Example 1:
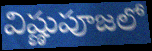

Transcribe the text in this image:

విష్ణుపూజలో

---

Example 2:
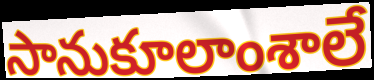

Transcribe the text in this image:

సానుకూలాంశాలే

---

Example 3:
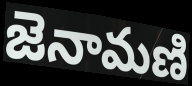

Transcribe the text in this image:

జెనామణి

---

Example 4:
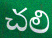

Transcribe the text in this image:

చలి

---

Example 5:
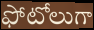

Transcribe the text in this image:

ఫోటోలుగా